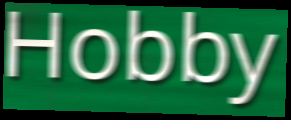
Hobby